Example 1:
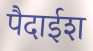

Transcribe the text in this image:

पैदाईश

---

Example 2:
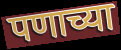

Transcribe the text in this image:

पणाच्या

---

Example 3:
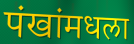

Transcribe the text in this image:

पंखांमधला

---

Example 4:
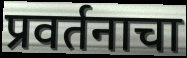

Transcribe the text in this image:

प्रवर्तनाचा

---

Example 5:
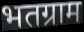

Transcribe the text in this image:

भतग्राम